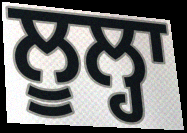
ਲੂਲ੍ਹਾ